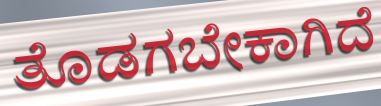
ತೊಡಗಬೇಕಾಗಿದೆ